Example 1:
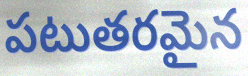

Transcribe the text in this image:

పటుతరమైన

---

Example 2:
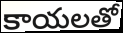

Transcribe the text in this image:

కాయలతో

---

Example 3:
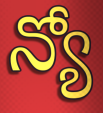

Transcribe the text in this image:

న్యో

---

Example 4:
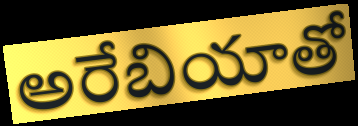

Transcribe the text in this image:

అరేబియాతో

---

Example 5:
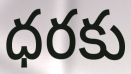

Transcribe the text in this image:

ధరకు